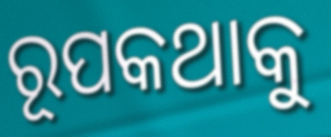
ରୂପକଥାକୁ